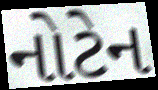
નોટેન